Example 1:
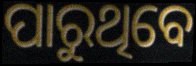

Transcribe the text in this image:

ପାରୁଥିବେ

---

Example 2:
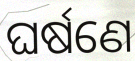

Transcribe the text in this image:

ଘର୍ଷଣେ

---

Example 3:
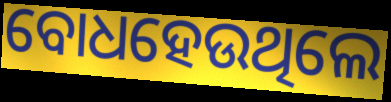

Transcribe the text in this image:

ବୋଧହେଉଥିଲେ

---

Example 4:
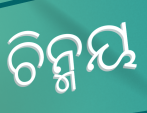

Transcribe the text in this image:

ଚିନ୍ମୟ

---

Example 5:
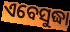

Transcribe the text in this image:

ଏବେସୁଦ୍ଧା